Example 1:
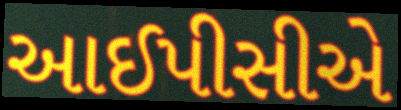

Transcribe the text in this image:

આઈપીસીએ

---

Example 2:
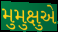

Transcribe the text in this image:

મુમુક્ષુએ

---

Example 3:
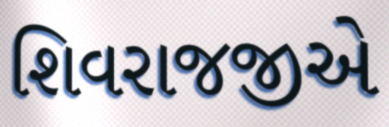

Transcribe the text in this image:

શિવરાજજીએ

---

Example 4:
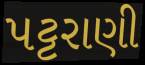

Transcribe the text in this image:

પટ્ટરાણી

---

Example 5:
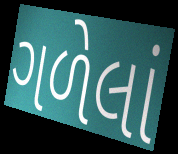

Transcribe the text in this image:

ગળેલાં